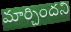
మార్చిందని